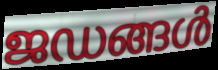
ജഡങ്ങൾ